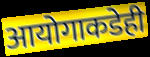
आयोगाकडेही